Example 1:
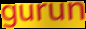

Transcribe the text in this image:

gurun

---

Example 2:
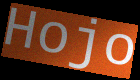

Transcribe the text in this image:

Hojo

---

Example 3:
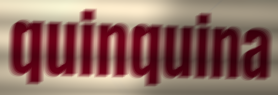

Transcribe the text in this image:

quinquina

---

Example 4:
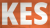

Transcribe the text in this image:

KES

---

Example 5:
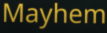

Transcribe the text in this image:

Mayhem